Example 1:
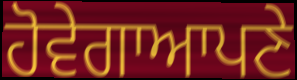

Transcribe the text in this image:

ਹੋਵੇਗਾਆਪਣੇ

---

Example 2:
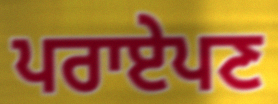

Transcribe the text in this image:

ਪਰਾਏਪਣ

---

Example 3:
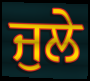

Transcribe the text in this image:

ਜੁਲੇ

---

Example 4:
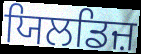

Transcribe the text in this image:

ਯਿਲਡਿਜ਼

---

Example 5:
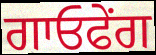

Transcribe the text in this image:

ਗਾਓਫੇਂਗ